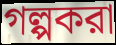
গল্পকরা